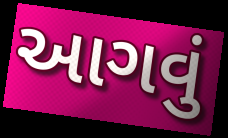
આગવું